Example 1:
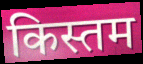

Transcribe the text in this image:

किस्तम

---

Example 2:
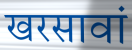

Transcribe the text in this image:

खरसावां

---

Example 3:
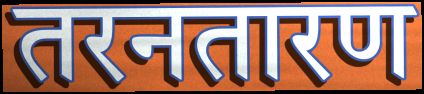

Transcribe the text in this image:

तरनतारण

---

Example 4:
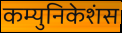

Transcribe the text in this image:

कम्‍युनिकेशंस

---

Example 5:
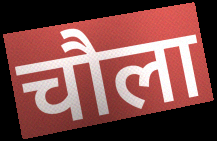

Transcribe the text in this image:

चौला